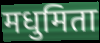
मधुमिता